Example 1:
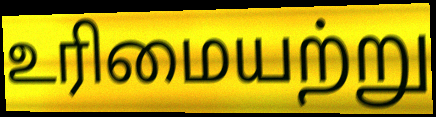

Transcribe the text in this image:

உரிமையற்று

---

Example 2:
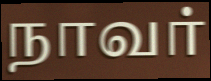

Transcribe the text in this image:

நாவர்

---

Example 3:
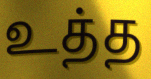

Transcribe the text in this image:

உத்த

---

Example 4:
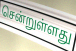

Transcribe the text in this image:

சென்றுள்ளது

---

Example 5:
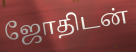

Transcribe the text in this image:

ஜோதிடன்